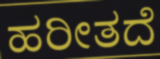
ಹರೀತದೆ